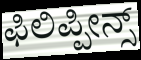
ಫಿಲಿಪ್ಪೀನ್ಸ್